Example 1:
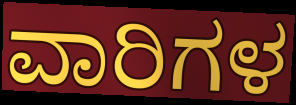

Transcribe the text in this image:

ವಾರಿಗಳ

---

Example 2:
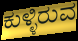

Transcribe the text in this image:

ಕುಳ್ಳಿರುವ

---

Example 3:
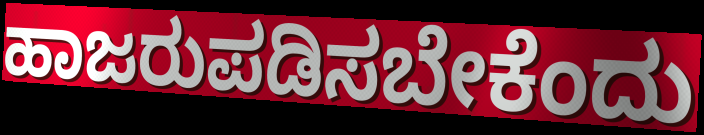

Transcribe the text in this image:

ಹಾಜರುಪಡಿಸಬೇಕೆಂದು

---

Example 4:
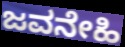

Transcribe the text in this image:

ಜವನೇಹಿ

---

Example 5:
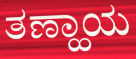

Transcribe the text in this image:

ತಣ್ಹಾಯ